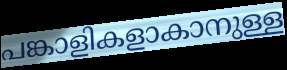
പങ്കാളികളാകാനുള്ള